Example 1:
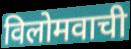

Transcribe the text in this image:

विलोमवाची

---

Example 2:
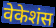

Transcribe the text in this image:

वेकेशंस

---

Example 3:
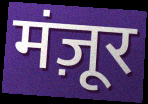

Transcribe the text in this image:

मंज़ूर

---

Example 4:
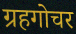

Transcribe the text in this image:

ग्रहगोचर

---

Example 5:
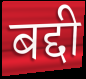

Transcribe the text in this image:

बद्दी